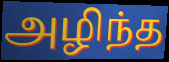
அழிந்த